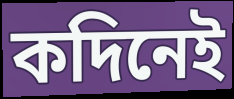
কদিনেই